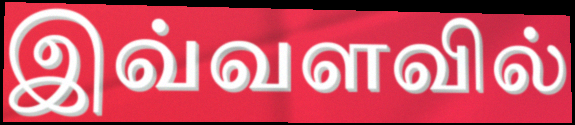
இவ்வளவில்